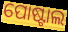
ପୋଷ୍ଟାଲ